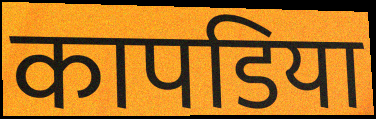
कापडिया